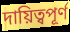
দায়িত্বপূর্ণ